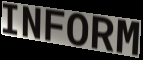
INFORM